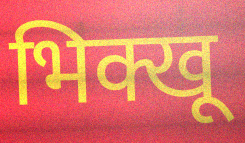
भिक्खू